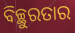
ବିଚ୍ଛୁରତାର